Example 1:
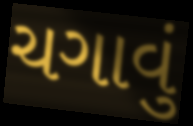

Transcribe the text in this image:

ચગાવું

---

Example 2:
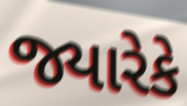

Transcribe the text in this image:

જ્યારેકે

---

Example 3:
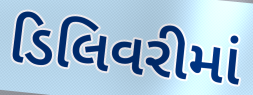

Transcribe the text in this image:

ડિલિવરીમાં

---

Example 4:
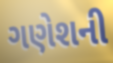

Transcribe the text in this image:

ગણેશની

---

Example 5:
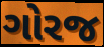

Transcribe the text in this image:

ગોરજ